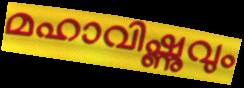
മഹാവിഷ്ണുവും